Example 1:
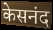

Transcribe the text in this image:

केसनंद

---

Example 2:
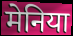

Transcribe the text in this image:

मेनिया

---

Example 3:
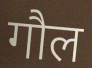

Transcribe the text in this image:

गौल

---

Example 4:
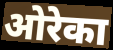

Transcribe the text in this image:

ओरेका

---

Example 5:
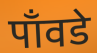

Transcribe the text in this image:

पाँवडे